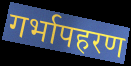
गर्भापहरण